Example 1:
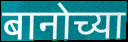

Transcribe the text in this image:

बानोच्या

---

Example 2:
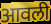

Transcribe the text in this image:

आवली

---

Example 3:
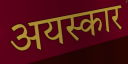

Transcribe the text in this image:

अयस्कार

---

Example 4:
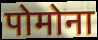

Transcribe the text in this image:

पोमोना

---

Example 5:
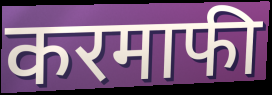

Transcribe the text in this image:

करमाफी